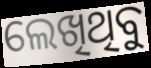
ଲେଖିଥିବୁ